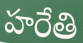
హరేతి